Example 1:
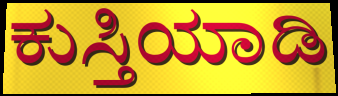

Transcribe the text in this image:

ಕುಸ್ತಿಯಾಡಿ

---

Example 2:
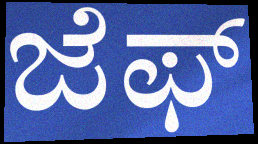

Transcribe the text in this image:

ಜೆಫ್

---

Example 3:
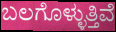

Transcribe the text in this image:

ಬಲಗೊಳ್ಳುತ್ತಿವೆ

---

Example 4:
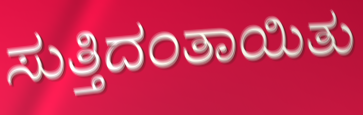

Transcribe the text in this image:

ಸುತ್ತಿದಂತಾಯಿತು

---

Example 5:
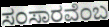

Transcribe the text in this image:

ಸಂಸಾರವೆಂಬ